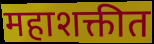
महाशक्तीत